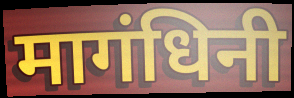
मागंधिनी